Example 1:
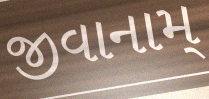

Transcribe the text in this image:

જીવાનામ્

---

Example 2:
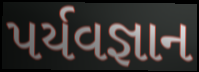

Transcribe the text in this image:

પર્યવજ્ઞાન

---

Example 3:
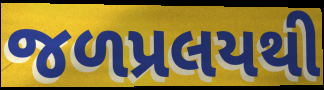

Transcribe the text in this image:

જળપ્રલયથી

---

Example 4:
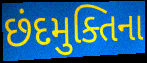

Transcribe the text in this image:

છંદમુક્તિના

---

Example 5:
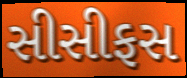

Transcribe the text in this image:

સીસીફસ